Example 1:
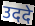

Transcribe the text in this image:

उददे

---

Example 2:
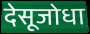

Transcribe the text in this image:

देसूजोधा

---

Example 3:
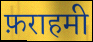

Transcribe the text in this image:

फ़राहमी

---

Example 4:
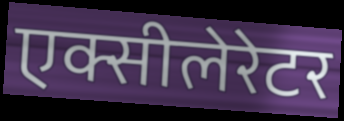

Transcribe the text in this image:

एक्सीलेरेटर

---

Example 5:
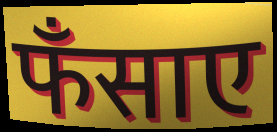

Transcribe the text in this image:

फँसाए